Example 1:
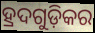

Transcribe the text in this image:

ହ୍ରଦଗୁଡ଼ିକର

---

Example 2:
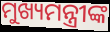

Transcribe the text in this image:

ମୁଖ୍ୟମନ୍ତ୍ରୀଙ୍କ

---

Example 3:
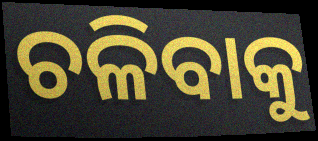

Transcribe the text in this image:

ଚଳିବାକୁ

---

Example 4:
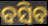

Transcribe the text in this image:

ବସିବ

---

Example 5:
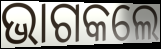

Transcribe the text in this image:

ଭାଗକଲେ